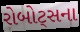
રોબોટ્સના